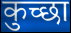
कुच्छा